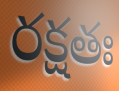
రక్షతః